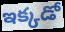
ఇక్కడో